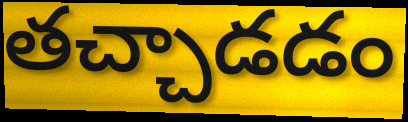
తచ్చాడడం